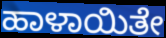
ಹಾಳಾಯಿತೇ